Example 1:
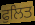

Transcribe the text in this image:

ਫੁਲਿਤ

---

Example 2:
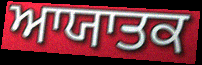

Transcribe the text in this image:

ਆਯਾਤਕ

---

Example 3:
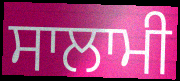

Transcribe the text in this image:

ਸਾਲਾਮੀ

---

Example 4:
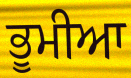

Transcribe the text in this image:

ਭੂਮੀਆ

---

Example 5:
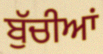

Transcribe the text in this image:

ਬੁੱਚੀਆਂ